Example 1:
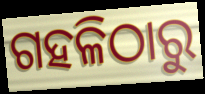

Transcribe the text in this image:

ଗହଳିଠାରୁ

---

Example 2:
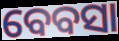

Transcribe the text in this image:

ବେବସା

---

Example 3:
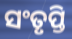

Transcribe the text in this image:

ସଂତୃପ୍ତି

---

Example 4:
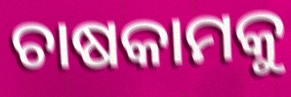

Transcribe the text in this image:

ଚାଷକାମକୁ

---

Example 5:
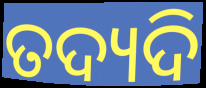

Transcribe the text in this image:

ତଦ୍ୟଦି